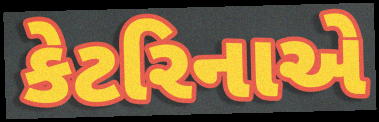
કેટરિનાએ